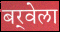
बर्वेला